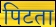
पिटता